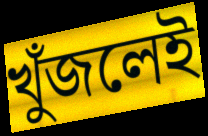
খুঁজলেই